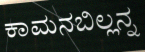
ಕಾಮನಬಿಲ್ಲನ್ನ